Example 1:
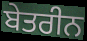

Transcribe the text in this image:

ਬੇਤਰੀਨ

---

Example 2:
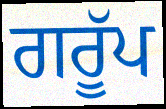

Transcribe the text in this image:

ਗਰੂੱਪ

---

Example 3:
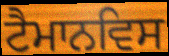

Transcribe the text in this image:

ਟੈਮਾਨਵਿਸ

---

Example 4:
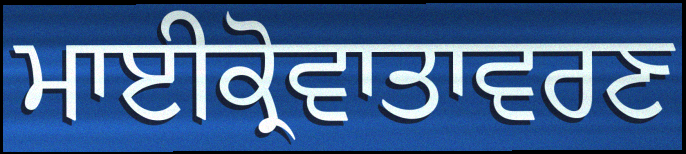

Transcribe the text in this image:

ਮਾਈਕ੍ਰੋਵਾਤਾਵਰਣ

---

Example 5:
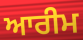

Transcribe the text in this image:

ਆਰੀਮ